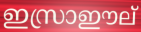
ഇസ്രാഈല്